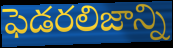
ఫెడరలిజాన్ని